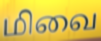
மிவை